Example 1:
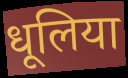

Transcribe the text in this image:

धूलिया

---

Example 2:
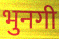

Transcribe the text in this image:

भुनगी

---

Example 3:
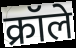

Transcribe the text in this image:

क्रॉले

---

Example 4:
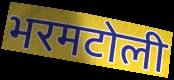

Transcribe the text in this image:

भरमटोली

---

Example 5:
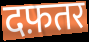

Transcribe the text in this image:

दफ़तर